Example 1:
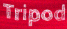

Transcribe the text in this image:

Tripod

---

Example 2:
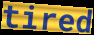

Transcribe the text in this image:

tired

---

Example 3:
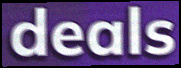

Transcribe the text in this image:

deals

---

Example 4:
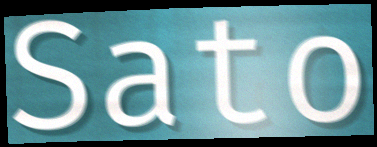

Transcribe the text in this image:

Sato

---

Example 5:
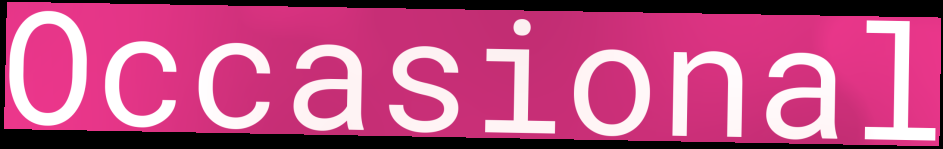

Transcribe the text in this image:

Occasional